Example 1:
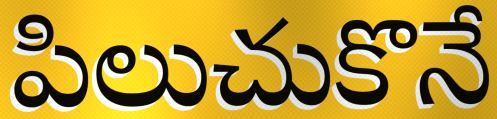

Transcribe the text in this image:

పిలుచుకొనే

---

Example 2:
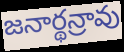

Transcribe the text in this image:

జనార్థన్రావు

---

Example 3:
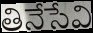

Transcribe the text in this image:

తినేసేవి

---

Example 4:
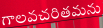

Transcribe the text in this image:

గాలవచరితమను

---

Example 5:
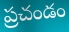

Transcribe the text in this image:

ప్రచండం